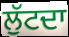
ਲੁੱਟਦਾ